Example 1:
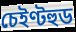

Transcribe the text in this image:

চেইণ্টহুড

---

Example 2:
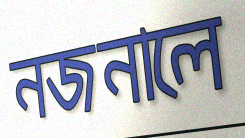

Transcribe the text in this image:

নজনালে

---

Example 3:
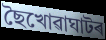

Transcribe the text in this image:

ছৈখোৱাঘাটৰ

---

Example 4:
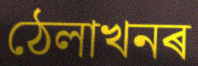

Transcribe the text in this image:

ঠেলাখনৰ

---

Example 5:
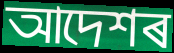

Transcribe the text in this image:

আদেশৰ